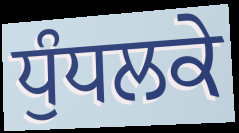
ਧੁੰਧਲਕੇ